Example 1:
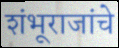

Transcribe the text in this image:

शंभूराजांचे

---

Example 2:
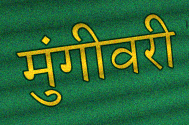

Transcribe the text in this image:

मुंगीवरी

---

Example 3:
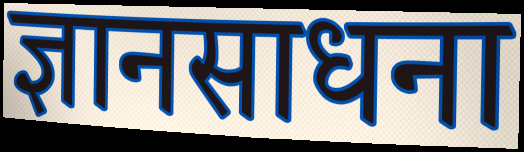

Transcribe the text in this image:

ज्ञानसाधना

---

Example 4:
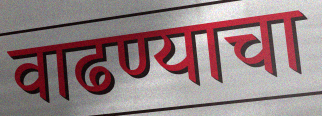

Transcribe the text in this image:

वाढण्याचा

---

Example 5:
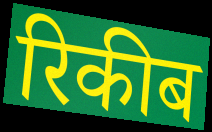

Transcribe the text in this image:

रिकीब